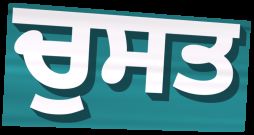
ਚੁਸਤ